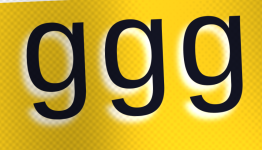
ggg